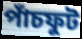
পাঁচফুট